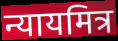
न्यायमित्र